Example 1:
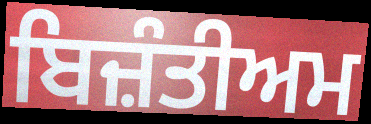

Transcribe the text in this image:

ਬਿਜ਼ੰਤੀਅਮ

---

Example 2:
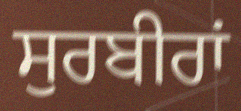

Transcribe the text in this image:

ਸੁਰਬੀਰਾਂ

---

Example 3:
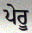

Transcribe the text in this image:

ਪੇਰੂ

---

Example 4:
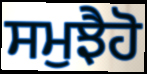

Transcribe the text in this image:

ਸਮੁਝੈਹੋ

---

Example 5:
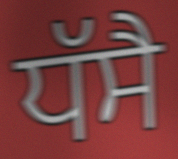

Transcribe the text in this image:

ਧੱਸੈ